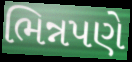
ભિન્નપણે